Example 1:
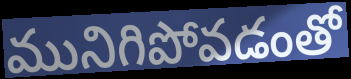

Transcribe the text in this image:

మునిగిపోవడంతో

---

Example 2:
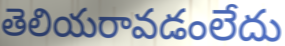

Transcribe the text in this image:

తెలియరావడంలేదు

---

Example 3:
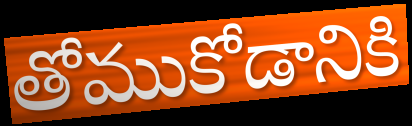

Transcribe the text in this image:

తోముకోడానికి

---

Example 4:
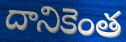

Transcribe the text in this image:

దానికెంత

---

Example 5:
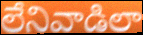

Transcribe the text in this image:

లేనివాడిలా